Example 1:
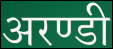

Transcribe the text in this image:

अरण्डी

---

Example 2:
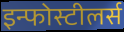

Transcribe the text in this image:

इन्फोस्टीलर्स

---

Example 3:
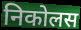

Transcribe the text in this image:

निकोलस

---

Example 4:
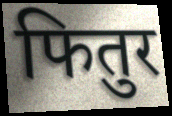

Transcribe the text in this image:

फितुर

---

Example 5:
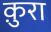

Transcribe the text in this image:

क़ुरा